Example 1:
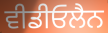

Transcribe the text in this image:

ਵੀਡੀਓਲੈਨ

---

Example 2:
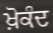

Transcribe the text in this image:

ਖ਼ੋਕੰਦ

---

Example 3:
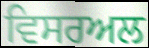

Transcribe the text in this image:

ਵਿਸਰਅਲ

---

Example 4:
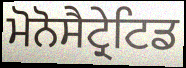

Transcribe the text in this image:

ਮੋਨੋਸੈਟ੍ਰੇਟਿਡ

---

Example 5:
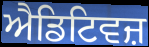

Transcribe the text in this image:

ਐਡਿਟਿਵਜ਼